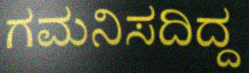
ಗಮನಿಸದಿದ್ದ